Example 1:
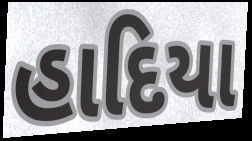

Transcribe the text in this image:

હાદિયા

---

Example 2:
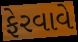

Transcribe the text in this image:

ફેરવાવે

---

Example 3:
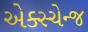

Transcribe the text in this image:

એક્સ્ચેન્જ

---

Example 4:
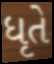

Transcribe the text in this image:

ધૃતે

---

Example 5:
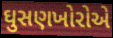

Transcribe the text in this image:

ઘુસણખોરોએ